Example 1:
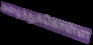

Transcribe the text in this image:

அழைத்துக்கொள்ள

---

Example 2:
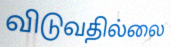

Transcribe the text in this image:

விடுவதில்லை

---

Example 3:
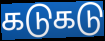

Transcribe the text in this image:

கடுகடு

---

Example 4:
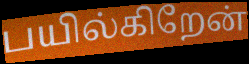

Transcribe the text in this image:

பயில்கிறேன்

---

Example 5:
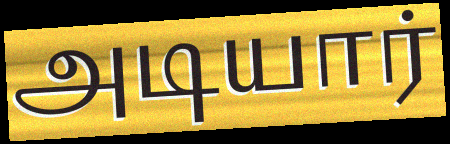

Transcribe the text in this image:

அடியார்